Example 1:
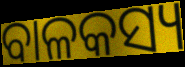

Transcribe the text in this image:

ବାଳକସ୍ୟ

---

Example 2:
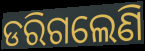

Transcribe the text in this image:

ଡରିଗଲେଣି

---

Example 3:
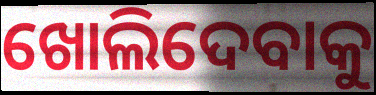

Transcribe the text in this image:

ଖୋଲିଦେବାକୁ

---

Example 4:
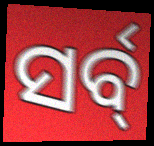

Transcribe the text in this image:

ସର୍ବ୍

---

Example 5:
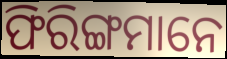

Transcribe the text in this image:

ଫିରିଙ୍ଗମାନେ